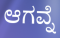
ಆಗವ್ನೆ